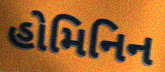
હોમિનિન